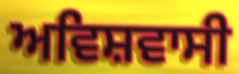
ਅਵਿਸ਼ਵਾਸੀ